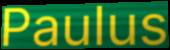
Paulus